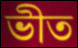
ভীত